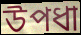
উপধা